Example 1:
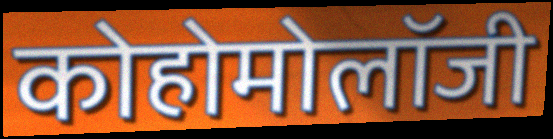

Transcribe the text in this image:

कोहोमोलॉजी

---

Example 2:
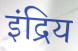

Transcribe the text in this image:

इंद्रिय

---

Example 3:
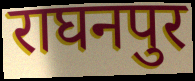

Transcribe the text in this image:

राघनपुर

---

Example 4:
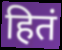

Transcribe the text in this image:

हितं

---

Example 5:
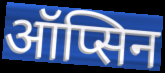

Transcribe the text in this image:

ऑप्सिन